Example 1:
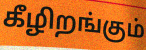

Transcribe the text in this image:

கீழிறங்கும்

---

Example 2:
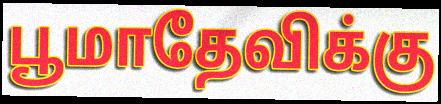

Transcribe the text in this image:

பூமாதேவிக்கு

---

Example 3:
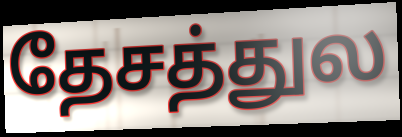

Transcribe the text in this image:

தேசத்துல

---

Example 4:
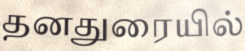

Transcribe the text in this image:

தனதுரையில்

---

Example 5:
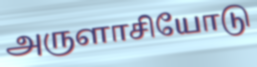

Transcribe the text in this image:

அருளாசியோடு